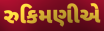
રુકિમણીએ